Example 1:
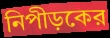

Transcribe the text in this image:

নিপীড়কের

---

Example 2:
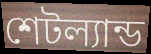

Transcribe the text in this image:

শেটল্যান্ড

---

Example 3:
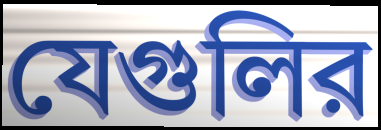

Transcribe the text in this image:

যেগুলির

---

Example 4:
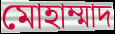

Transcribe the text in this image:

মোহাম্মাদ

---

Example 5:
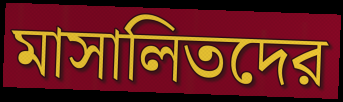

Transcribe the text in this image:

মাসালিতদের